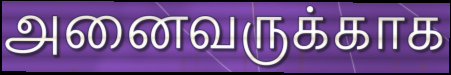
அனைவருக்காக